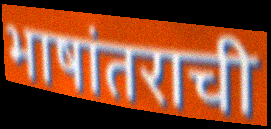
भाषांतराची